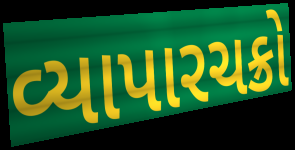
વ્યાપારચક્રો